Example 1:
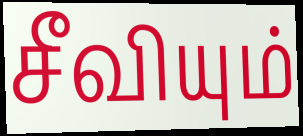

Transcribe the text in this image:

சீவியும்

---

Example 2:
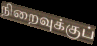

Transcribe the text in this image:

நிறைவுக்குப்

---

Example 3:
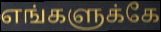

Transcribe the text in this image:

எங்களுக்கே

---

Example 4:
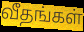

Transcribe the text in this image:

வீதங்கள்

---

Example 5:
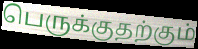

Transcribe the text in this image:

பெருக்குதற்கும்